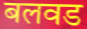
बलवड